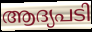
ആദ്യപടി